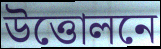
উত্তোলনে